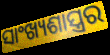
ସାଂଖ୍ୟଶାସ୍ତ୍ରର